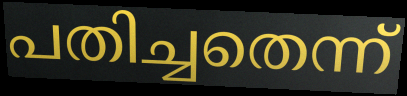
പതിച്ചതെന്ന്